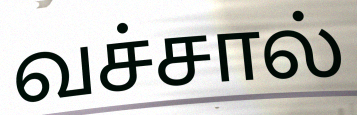
வச்சால்